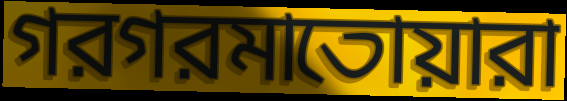
গরগরমাতোয়ারা